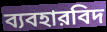
ব্যবহারবিদ